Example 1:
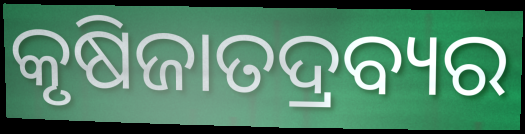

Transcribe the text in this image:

କୃଷିଜାତଦ୍ରବ୍ୟର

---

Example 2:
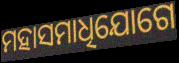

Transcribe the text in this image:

ମହାସମାଧିଯୋଗେ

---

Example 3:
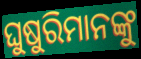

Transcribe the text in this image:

ଘୁଷୁରିମାନଙ୍କୁ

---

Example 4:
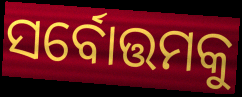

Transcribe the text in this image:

ସର୍ବୋତ୍ତମକୁ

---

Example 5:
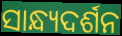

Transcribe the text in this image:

ସାନ୍ଧ୍ୟଦର୍ଶନ